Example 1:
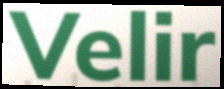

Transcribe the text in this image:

Velir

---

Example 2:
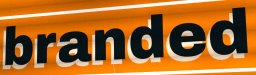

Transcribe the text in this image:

branded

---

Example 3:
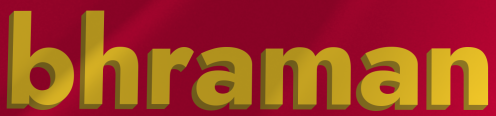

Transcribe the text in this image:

bhraman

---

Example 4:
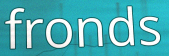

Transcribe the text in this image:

fronds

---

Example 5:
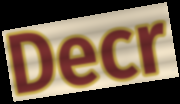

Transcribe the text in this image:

Decr